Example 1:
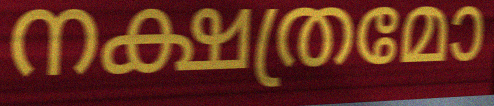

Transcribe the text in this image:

നക്ഷത്രമോ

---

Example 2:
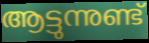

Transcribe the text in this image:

ആട്ടുന്നുണ്ട്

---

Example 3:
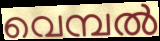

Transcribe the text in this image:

വെമ്പൽ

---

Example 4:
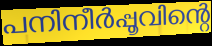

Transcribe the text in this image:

പനിനീർപ്പൂവിന്റെ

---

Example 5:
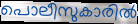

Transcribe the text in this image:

പൊലീസുകാരിൽ